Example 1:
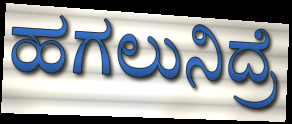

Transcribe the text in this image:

ಹಗಲುನಿದ್ರೆ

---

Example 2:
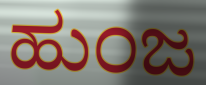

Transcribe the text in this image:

ಹುಂಜ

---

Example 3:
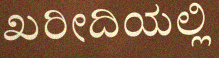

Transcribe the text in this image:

ಖರೀದಿಯಲ್ಲಿ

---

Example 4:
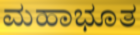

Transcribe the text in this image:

ಮಹಾಭೂತ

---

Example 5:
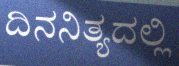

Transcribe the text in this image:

ದಿನನಿತ್ಯದಲ್ಲಿ